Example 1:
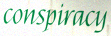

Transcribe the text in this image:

conspiracy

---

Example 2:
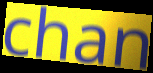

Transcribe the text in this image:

chan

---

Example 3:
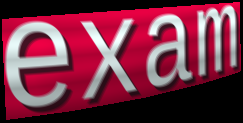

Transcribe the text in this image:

exam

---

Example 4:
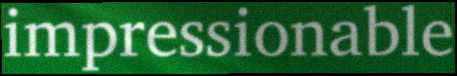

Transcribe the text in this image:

impressionable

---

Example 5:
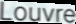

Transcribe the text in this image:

Louvre